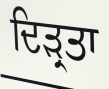
ਦਿੜ੍ਰਤਾ